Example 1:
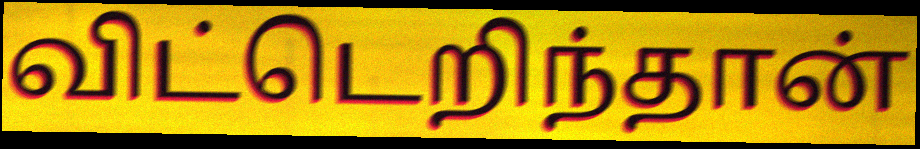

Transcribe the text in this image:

விட்டெறிந்தான்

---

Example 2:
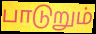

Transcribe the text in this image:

பாடுறும்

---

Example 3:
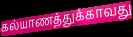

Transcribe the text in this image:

கல்யாணத்துக்காவது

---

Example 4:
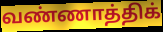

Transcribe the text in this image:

வண்ணாத்திக்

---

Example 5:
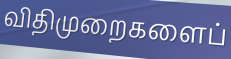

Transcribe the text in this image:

விதிமுறைகளைப்